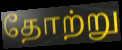
தோற்று